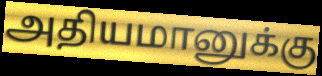
அதியமானுக்கு